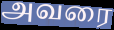
அவரை